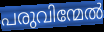
പരുവിന്മേൽ